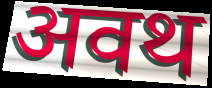
अवथ